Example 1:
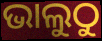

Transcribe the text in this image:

ଭାଲୁଠୁ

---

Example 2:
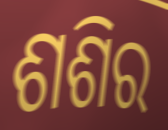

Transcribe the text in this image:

ଶଶିର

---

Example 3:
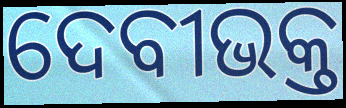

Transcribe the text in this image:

ଦେବୀଭକ୍ତ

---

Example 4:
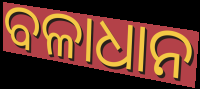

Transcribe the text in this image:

ବଳାଧାନ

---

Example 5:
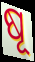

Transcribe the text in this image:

ଷୂ